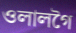
ওলালগৈ